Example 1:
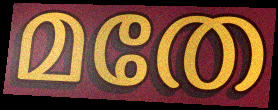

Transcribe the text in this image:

മതേ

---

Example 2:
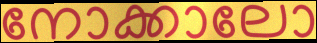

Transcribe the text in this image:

നോക്കാലോ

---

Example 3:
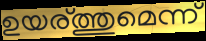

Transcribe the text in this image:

ഉയര്ത്തുമെന്ന്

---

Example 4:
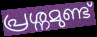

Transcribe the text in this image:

പ്രശ്നമുണ്ട്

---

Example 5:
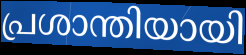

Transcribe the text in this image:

പ്രശാന്തിയായി